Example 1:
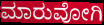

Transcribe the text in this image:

ಮಾರುವೋಗಿ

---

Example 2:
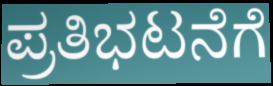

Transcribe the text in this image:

ಪ್ರತಿಭಟನೆಗೆ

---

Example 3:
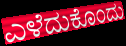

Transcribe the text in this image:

ಎಳೆದುಕೊಂದು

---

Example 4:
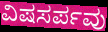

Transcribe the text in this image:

ವಿಷಸರ್ಪವು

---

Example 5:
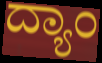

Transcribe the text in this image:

ದ್ಯಾಂ